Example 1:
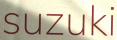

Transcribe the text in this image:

suzuki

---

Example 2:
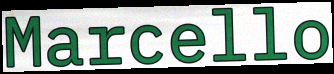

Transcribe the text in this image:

Marcello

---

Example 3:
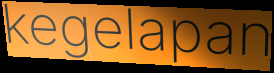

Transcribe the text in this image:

kegelapan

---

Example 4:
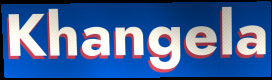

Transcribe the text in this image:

Khangela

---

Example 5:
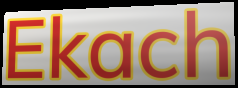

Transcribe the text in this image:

Ekach